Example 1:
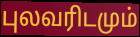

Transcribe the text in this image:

புலவரிடமும்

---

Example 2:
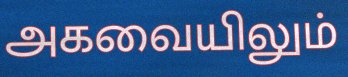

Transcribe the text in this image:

அகவையிலும்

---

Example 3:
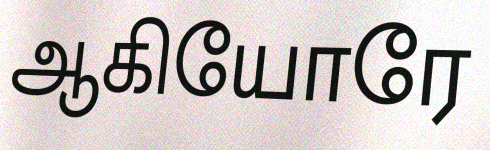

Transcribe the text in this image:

ஆகியோரே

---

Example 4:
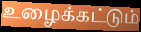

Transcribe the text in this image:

உழைக்கட்டும்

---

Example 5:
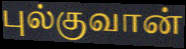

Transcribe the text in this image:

புல்குவான்